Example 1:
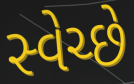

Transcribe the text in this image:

સ્વેચ્છે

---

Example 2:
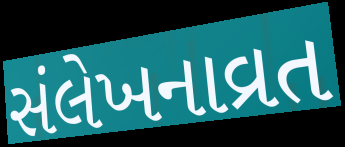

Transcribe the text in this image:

સંલેખનાવ્રત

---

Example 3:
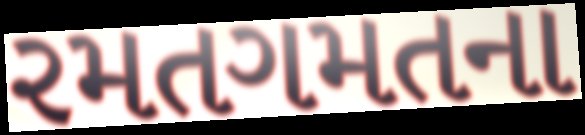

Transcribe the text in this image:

રમતગમતના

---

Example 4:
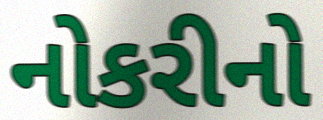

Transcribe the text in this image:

નોકરીનો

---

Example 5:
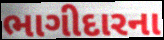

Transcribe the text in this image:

ભાગીદારના